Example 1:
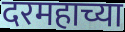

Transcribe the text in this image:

दरमहाच्या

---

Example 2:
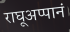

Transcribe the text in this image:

राघूअप्पानं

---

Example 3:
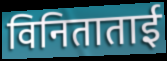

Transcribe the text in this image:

विनिताताई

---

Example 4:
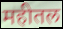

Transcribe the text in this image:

महीतल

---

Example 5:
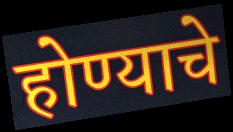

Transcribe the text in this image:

होण्याचे